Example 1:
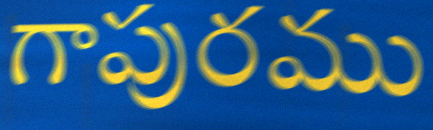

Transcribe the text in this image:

గాపురము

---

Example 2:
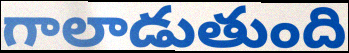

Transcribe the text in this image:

గాలాడుతుంది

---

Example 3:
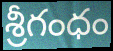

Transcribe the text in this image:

శ్రీగంధం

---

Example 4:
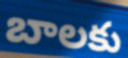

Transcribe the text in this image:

బాలకు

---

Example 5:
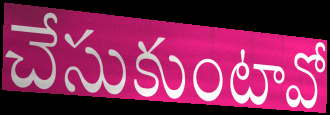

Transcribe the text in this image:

చేసుకుంటావో